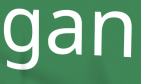
gan